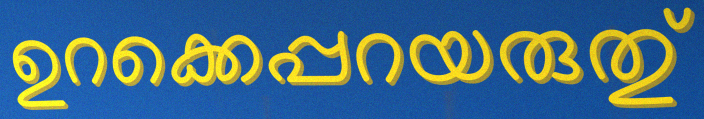
ഉറക്കെപ്പറയരുതു്